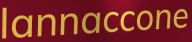
Iannaccone